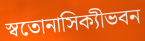
স্বতোনাসিক্যীভবন